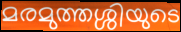
മരമുത്തശ്ശിയുടെ